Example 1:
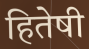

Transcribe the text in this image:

हितेषी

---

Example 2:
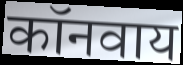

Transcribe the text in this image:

कॉनवाय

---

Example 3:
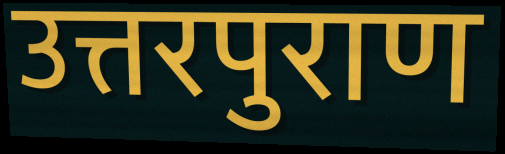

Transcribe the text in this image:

उत्तरपुराण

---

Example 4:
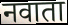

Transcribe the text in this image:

नवाता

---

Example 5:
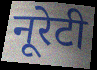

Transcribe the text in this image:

नूरेटी